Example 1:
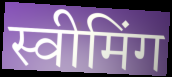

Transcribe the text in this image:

स्वीमिंग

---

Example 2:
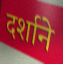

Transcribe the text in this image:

दर्शाने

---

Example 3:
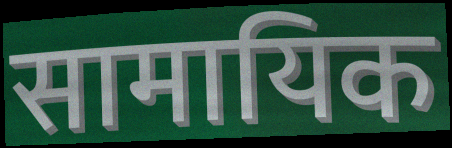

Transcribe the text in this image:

सामायिक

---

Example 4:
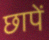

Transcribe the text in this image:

छापें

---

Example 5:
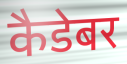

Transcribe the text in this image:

कैडेबर